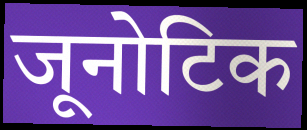
जूनोटिक